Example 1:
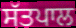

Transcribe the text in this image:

ਸੱਤਪਾਲ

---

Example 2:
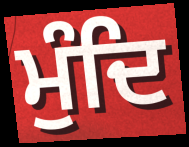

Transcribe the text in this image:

ਮੁੰਦਿ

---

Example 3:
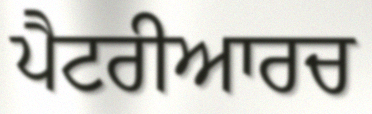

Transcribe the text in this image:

ਪੈਟਰੀਆਰਚ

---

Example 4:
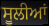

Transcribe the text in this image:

ਸੂਲੀਆਂ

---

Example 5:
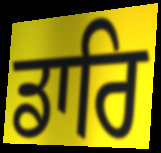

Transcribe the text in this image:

ਡਾਰਿ